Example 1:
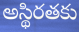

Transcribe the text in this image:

అస్థిరతకు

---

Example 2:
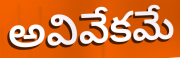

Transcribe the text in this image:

అవివేకమే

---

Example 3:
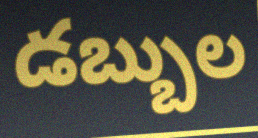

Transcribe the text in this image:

డబ్బుల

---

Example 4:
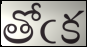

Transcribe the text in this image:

తోఁక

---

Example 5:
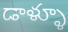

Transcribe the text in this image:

డాళ్ళూ